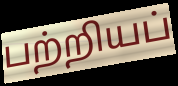
பற்றியப்